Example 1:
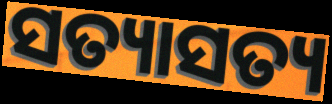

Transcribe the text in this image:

ସତ୍ୟାସତ୍ୟ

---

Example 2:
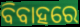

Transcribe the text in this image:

ବିବାହରେ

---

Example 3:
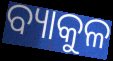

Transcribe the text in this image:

ବ୍ୟାକୁଳ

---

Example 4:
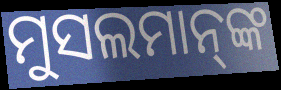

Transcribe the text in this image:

ମୁସଲମାନ୍‍ଙ୍କ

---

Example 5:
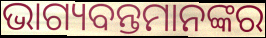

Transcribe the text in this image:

ଭାଗ୍ୟବନ୍ତମାନଙ୍କର